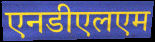
एनडीएलएम